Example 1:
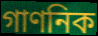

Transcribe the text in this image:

গাণনিক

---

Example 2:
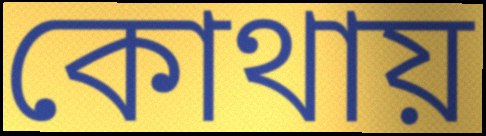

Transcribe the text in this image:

কোথায়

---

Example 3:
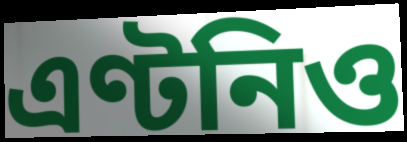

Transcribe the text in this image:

এণ্টনিও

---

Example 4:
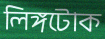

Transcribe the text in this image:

লিঙ্গটোক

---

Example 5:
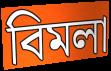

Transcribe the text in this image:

বিমলা